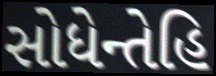
સોધેન્તેહિ